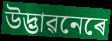
উদ্ভাৱনেৰে